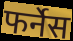
फर्नेस